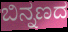
ಬಿನ್ನಣದ